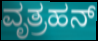
ವೃತ್ರಹನ್